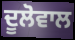
ਦੂਲੋਵਾਲ